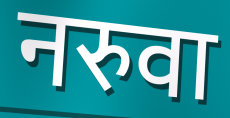
नरुवा